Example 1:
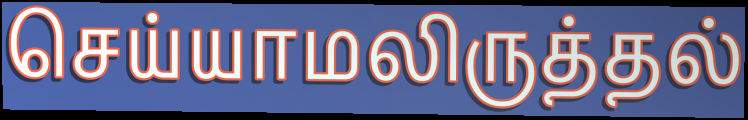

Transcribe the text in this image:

செய்யாமலிருத்தல்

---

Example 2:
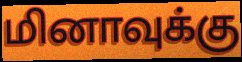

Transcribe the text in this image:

மினாவுக்கு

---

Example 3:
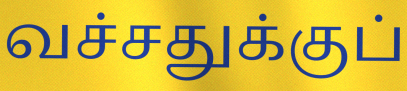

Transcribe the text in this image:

வச்சதுக்குப்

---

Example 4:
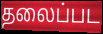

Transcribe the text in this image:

தலைப்பட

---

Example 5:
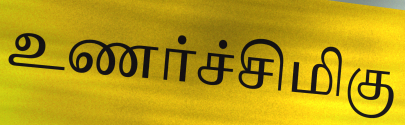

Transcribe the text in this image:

உணர்ச்சிமிகு